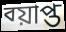
ব্য়াপ্ত